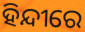
ହିନ୍ଦୀରେ